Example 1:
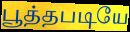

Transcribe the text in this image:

பூத்தபடியே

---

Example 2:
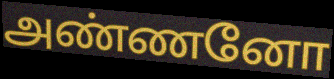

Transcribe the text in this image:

அண்ணனோ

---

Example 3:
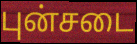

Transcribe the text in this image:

புன்சடை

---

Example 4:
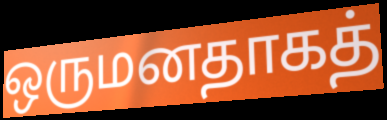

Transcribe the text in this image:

ஒருமனதாகத்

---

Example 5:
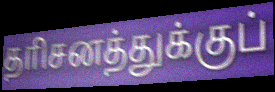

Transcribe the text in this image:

தரிசனத்துக்குப்